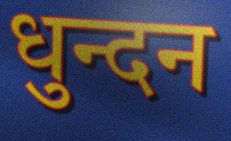
धुन्दन